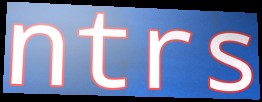
ntrs